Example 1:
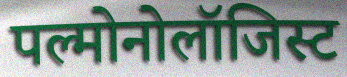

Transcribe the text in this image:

पल्मोनोलॉजिस्ट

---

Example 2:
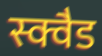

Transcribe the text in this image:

स्क्वैड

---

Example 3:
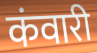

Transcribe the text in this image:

कंवारी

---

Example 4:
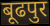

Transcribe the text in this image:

बूढपुर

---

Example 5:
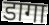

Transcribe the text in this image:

डागा